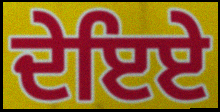
ਦੇਇਏ